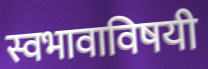
स्वभावाविषयी